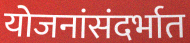
योजनांसंदर्भात